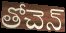
తోచెన్